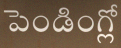
పెండింగ్లో